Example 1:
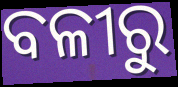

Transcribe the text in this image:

ବଳୀରୁ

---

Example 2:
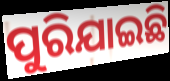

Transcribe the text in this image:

ପୁରିଯାଇଛି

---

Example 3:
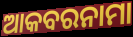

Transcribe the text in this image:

ଆକବରନାମା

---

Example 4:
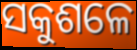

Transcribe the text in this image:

ସକୁଶଳେ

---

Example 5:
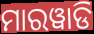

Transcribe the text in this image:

ମାରୱାଡି